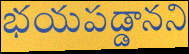
భయపడ్డానని